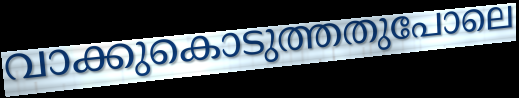
വാക്കുകൊടുത്തതുപോലെ